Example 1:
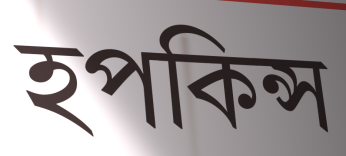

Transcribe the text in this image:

হপকিন্স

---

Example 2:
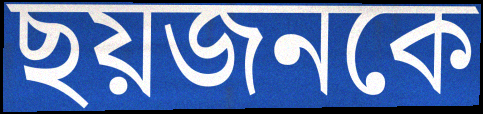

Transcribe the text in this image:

ছয়জনকে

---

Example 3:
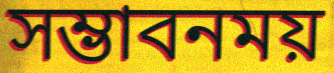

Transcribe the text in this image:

সম্ভাবনময়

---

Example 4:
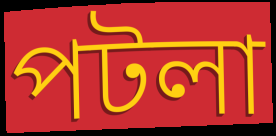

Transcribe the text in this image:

পটলা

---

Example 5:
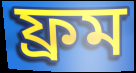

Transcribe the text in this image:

ফ্রম